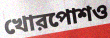
খোরপোশও